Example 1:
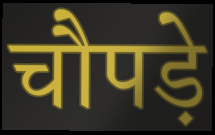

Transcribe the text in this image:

चौपड़े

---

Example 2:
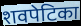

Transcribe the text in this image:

शवपेटिका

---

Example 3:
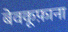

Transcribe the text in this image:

बेवकूफ़ाना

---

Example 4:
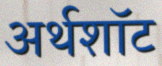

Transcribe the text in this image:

अर्थशॉट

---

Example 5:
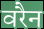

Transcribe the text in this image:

वरैन